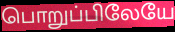
பொறுப்பிலேயே